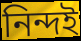
নিন্দই